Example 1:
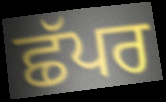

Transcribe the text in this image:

ਛੱਪਰ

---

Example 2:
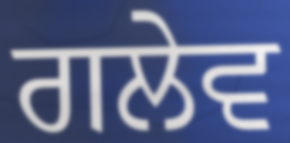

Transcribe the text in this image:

ਗਲੇਵ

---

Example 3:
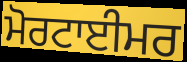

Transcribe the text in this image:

ਮੋਰਟਾਈਮਰ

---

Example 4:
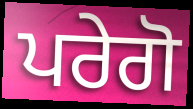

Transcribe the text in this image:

ਪਰੇਗੋ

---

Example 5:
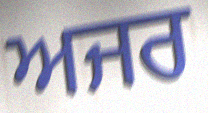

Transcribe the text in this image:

ਅਜਰ